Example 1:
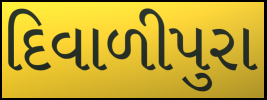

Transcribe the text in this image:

દિવાળીપુરા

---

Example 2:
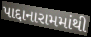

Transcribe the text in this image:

પાદ્દાનારામમાંથી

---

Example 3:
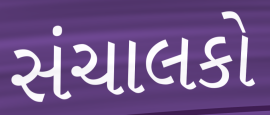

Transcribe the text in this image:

સંચાલકો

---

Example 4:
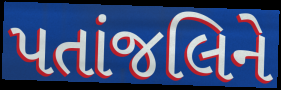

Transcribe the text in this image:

પતાંજલિને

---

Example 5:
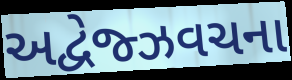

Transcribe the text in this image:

અદ્વેજ્ઝવચના